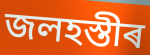
জলহস্তীৰ